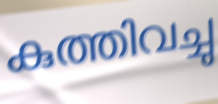
കുത്തിവച്ചു